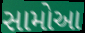
સામોઆ